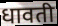
धावती